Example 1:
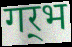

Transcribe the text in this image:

गर्भ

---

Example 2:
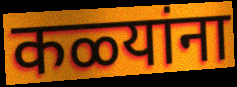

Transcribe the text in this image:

कळ्यांना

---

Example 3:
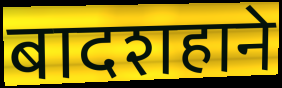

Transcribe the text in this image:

बादशहाने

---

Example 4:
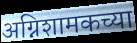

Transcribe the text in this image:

अग्निशामकच्या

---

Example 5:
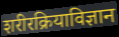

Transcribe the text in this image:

शरीरक्रियाविज्ञान